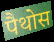
पैथोस